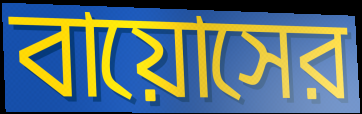
বায়োসের